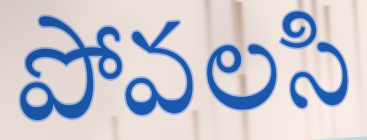
పోవలసి